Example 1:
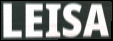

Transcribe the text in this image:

LEISA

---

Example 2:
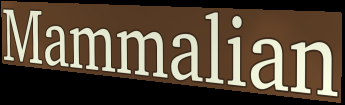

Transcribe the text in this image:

Mammalian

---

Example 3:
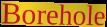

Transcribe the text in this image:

Borehole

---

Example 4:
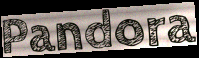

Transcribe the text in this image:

Pandora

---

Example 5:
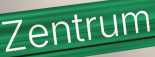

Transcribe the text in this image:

Zentrum